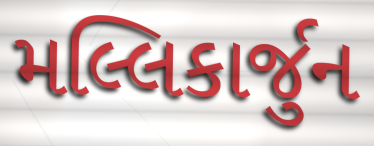
મલ્લિકાર્જુન